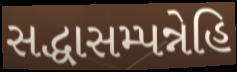
સદ્ધાસમ્પન્નેહિ